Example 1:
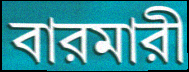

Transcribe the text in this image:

বারমারী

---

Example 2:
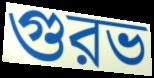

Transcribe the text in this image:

গুরভ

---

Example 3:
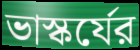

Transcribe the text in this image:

ভাস্কর্যের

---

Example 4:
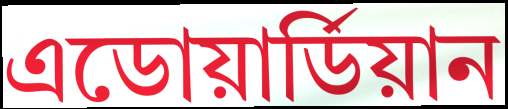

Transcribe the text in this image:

এডোয়ার্ডিয়ান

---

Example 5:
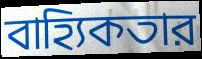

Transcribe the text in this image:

বাহ্যিকতার